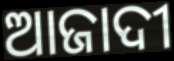
ଆଜାଦୀ